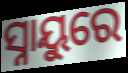
ସ୍ନାୟୁରେ